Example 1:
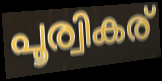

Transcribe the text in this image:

പൂര്വികര്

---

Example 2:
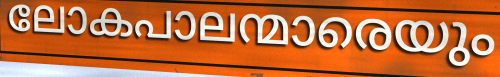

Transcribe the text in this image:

ലോകപാലന്മാരെയും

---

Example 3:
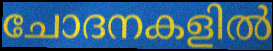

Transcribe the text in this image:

ചോദനകളിൽ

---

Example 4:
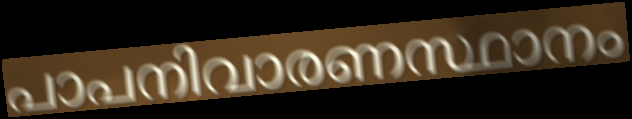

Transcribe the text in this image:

പാപനിവാരണസ്ഥാനം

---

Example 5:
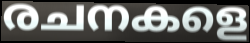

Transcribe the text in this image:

രചനകളെ